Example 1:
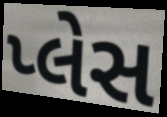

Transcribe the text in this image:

પ્લેસ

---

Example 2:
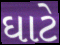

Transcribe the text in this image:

ઘાટે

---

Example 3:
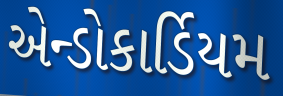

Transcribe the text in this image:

એન્ડોકાર્ડિયમ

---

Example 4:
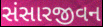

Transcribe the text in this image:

સંસારજીવન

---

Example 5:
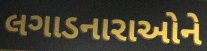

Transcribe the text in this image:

લગાડનારાઓને